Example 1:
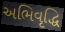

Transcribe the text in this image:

અભિવૃદ્ધિ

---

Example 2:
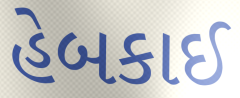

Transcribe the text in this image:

હેબકાઈ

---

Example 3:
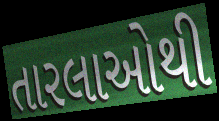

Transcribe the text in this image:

તારલાઓથી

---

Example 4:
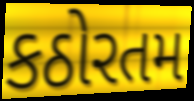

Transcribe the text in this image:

કઠોરતમ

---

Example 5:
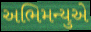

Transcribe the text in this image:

અભિમન્યુએ